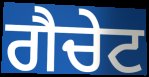
ਗੈਚੇਟ